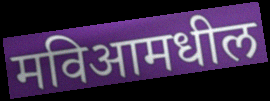
मविआमधील